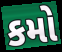
કમો